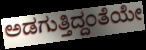
ಅಡಗುತ್ತಿದ್ದಂತೆಯೇ